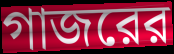
গাজরের